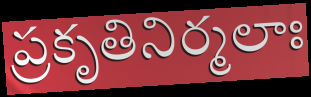
ప్రకృతినిర్మలాః